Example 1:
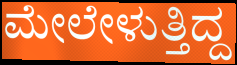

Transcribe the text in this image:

ಮೇಲೇಳುತ್ತಿದ್ದ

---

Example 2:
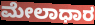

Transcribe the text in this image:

ಮೇಲಾಧಾರ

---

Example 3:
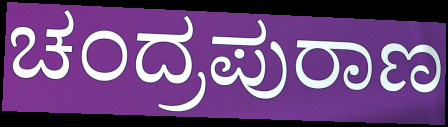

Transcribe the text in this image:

ಚಂದ್ರಪುರಾಣ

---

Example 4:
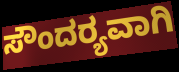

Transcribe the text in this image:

ಸೌಂದರ‍್ಯವಾಗಿ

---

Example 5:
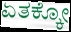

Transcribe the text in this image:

ಏತಕ್ಕೋ